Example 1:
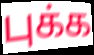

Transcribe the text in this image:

புக்க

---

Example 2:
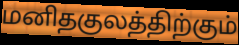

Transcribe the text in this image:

மனிதகுலத்திற்கும்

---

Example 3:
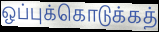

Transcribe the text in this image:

ஒப்புக்கொடுக்கத்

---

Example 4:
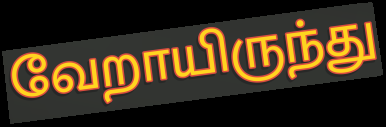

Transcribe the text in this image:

வேறாயிருந்து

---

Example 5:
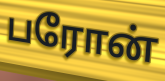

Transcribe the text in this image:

பரோன்